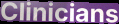
Clinicians